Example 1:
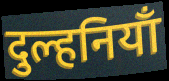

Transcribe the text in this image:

दुल्हनियाँ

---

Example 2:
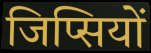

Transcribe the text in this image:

जिप्सियों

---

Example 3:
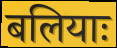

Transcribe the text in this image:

बलियाः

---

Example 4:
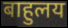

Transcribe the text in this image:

बाहुलय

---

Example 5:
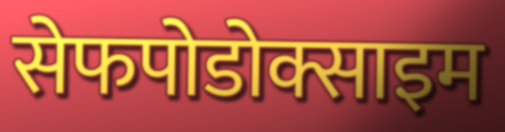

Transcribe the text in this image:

सेफपोडोक्साइम